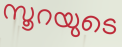
സൂറയുടെ